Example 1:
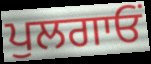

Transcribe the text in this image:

ਪੁਲਗਾਓਂ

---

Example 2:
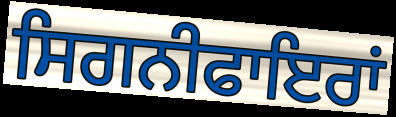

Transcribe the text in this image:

ਸਿਗਨੀਫਾਇਰਾਂ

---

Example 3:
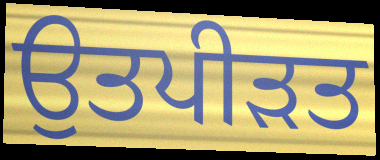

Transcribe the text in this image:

ਉਤਪੀੜਤ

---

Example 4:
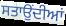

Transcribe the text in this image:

ਸਤਾਉਂਦੀਆਂ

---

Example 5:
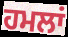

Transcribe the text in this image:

ਹਮਲਾਂ